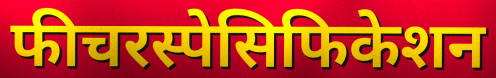
फीचरस्पेसिफिकेशन